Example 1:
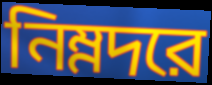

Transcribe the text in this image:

নিম্নদরে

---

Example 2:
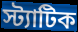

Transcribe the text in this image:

স্ট্যাটিক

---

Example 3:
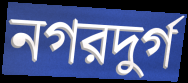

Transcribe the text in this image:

নগরদুর্গ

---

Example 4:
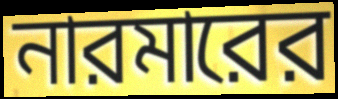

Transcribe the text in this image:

নারমারের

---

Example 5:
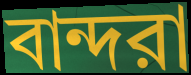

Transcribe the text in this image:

বান্দরা